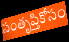
సంతృప్తికోసం